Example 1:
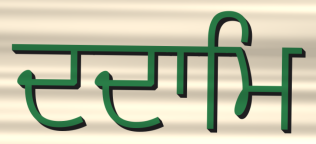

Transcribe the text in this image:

ਦਦਾਮਿ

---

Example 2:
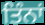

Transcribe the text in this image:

ਤਿੰਨਾਂ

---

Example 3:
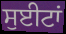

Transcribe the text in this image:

ਸੁਈਟਾਂ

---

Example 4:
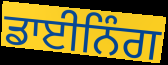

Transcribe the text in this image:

ਡਾਈਨਿੰਗ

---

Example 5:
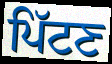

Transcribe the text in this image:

ਪਿੱਟਣ